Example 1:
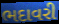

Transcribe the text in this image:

ભદાવરી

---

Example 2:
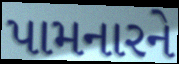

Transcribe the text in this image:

પામનારને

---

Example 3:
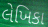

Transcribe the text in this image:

લેખિકા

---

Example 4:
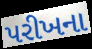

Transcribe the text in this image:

પરીખના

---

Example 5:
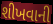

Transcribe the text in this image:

શીખવાની